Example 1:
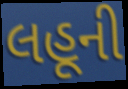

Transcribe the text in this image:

લહૂની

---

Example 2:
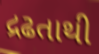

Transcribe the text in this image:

દ્રઢતાથી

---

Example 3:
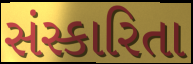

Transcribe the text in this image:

સંસ્કારિતા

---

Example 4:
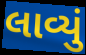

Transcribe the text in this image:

લાવ્યું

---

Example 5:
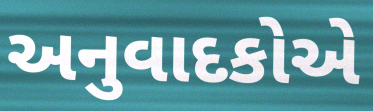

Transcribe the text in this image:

અનુવાદકોએ